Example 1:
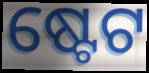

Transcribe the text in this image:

ଷ୍ଟେଟ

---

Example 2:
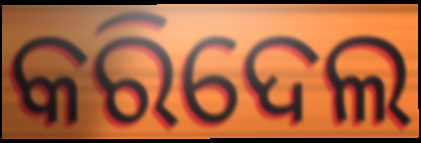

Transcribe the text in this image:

କରିଦେଲ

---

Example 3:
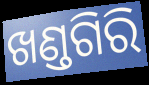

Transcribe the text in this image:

ଖଣ୍ଡଗିରି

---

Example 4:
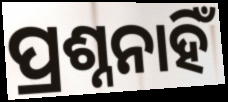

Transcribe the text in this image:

ପ୍ରଶ୍ନନାହିଁ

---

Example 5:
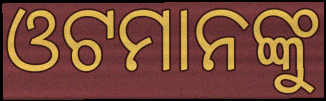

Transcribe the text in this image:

ଓଟମାନଙ୍କୁ